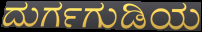
ದುರ್ಗಗುಡಿಯ